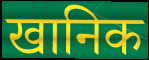
खानिक